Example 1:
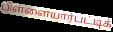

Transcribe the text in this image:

பிள்ளையார்பட்டிக்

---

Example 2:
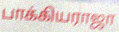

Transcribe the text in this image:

பாக்கியராஜா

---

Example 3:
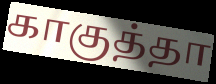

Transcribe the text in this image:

காகுத்தா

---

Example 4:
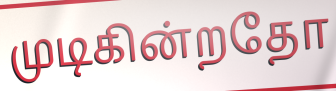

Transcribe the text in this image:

முடிகின்றதோ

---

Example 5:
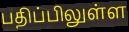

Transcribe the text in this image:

பதிப்பிலுள்ள